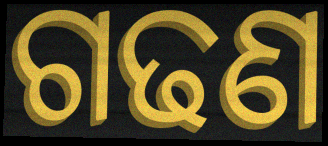
ଗଢଣ